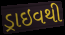
ડ્રાઇવથી